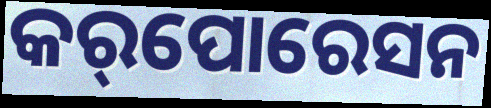
କର୍‌ପୋରେସନ